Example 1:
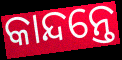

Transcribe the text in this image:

କାନ୍ଦନ୍ତେ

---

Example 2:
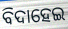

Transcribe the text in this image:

ବିଦାହେଇ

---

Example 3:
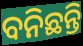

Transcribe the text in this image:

ବନିଛନ୍ତି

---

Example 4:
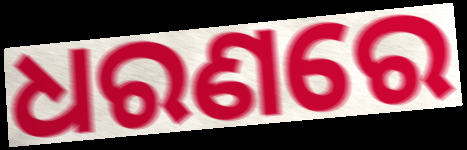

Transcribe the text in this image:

ଧରଣରେ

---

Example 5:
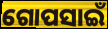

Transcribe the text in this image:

ଗୋପସାଇଁ